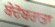
ਬੇਦੋਬਰਾਤਾ